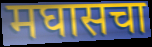
मघासचा